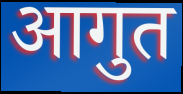
आगुत